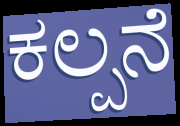
ಕಲ್ಪನೆ